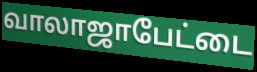
வாலாஜாபேட்டை